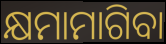
କ୍ଷମାମାଗିବା